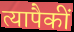
त्यापैकीं